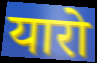
यारो